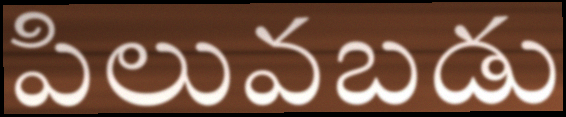
పిలువబడు